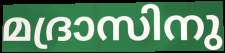
മദ്രാസിനു